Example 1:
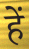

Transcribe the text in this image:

हें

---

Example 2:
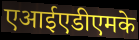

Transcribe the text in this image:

एआईएडीएमके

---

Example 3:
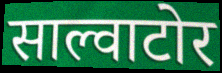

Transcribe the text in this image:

साल्वाटोर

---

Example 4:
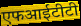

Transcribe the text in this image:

एफआईटीटी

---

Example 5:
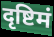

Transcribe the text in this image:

दृष्टिमं